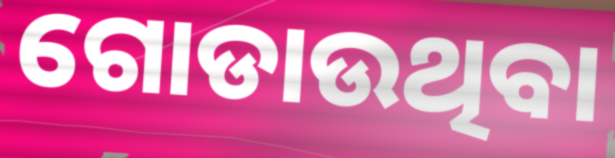
ଗୋଡାଉଥିବା